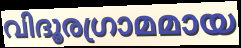
വിദൂരഗ്രാമമായ